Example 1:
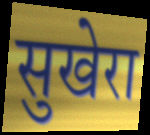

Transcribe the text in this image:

सुखेरा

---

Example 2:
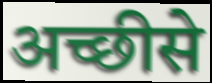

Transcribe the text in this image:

अच्छीसे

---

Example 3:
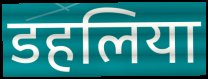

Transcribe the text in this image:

डहलिया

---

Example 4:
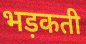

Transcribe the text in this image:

भड़कती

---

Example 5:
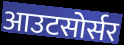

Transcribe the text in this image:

आउटसोर्सर